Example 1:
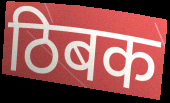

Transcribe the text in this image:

ठिबक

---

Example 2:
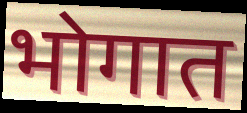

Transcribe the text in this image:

भोगात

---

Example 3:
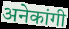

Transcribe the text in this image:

अनेकांगी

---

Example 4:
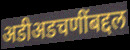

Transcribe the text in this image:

अडीअडचणींबद्दल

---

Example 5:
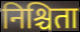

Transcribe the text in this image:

निश्चिता